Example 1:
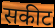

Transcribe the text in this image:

सकीट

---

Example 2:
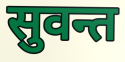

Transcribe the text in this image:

सुवन्त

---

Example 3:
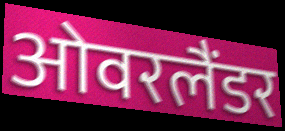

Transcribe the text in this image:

ओवरलैंडर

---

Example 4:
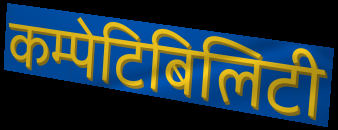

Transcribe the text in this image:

कम्पेटिबिलिटी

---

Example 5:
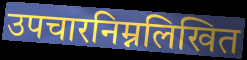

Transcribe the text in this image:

उपचारनिम्नलिखित